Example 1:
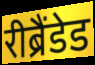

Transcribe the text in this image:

रीब्रैंडेड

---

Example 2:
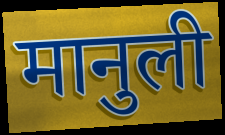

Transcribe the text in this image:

मानुली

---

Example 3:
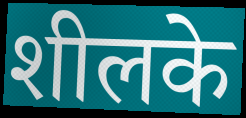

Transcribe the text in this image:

शीलके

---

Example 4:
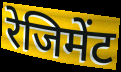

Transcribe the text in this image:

रेजिमेंट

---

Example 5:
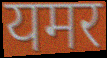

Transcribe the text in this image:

यमर